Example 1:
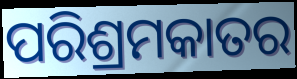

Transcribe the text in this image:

ପରିଶ୍ରମକାତର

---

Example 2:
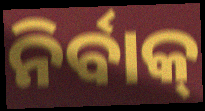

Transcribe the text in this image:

ନିର୍ବାକ୍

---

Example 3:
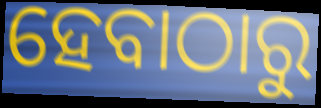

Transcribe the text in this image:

ହେବାଠାରୁ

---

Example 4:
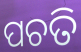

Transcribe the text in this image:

ପଚତି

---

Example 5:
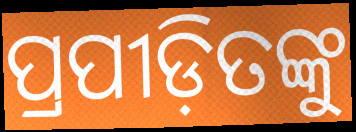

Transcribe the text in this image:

ପ୍ରପୀଡ଼ିତଙ୍କୁ